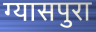
ग्यासपुरा